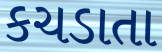
કચડાતા